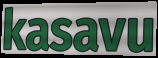
kasavu